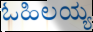
ಓಹಿಲಯ್ಯ